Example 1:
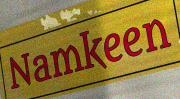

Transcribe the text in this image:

Namkeen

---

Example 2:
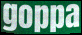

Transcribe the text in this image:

goppa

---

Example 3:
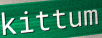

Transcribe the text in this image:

kittum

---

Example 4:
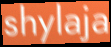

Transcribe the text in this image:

shylaja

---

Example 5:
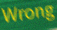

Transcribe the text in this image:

Wrong